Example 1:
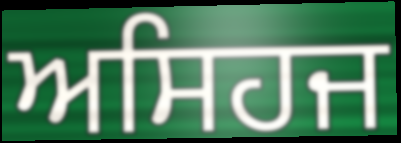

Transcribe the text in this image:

ਅਸਿਹਜ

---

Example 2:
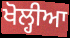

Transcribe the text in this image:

ਖੋਲ੍ਹੀਆ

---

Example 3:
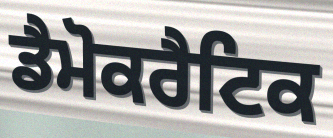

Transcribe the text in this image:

ਡੈਮੋਕਰੈਟਿਕ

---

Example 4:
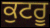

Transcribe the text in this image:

ਕੁਟਰੂ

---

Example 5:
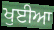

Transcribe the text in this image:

ਖੁਈਆ